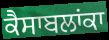
ਕੈਸਾਬਲਾਂਕਾ